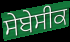
ਸੇਬੇਸੀਕ